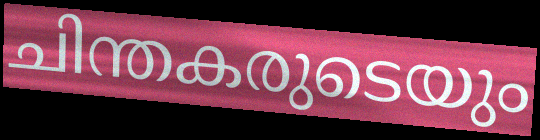
ചിന്തകരുടെയും